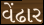
વેંઢાર